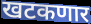
खटकणार